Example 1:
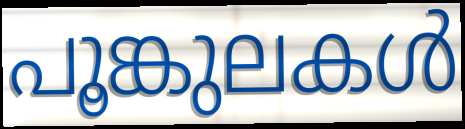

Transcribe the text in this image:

പൂങ്കുലകൾ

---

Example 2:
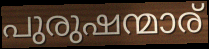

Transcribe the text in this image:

പുരുഷന്മാര്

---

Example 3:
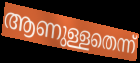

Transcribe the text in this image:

ആണുള്ളതെന്ന്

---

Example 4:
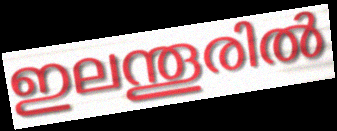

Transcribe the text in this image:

ഇലന്തൂരിൽ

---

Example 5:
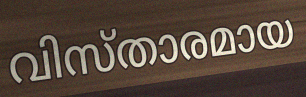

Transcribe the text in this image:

വിസ്താരമായ